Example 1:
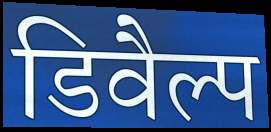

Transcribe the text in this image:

डिवैल्प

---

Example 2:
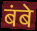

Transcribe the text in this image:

बंबे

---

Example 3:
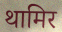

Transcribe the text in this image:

थामिर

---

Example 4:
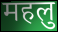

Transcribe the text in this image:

महलु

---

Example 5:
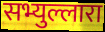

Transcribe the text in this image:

सभ्युल्लारा